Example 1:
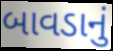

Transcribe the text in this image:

બાવડાનું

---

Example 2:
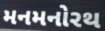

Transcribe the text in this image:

મનમનોરથ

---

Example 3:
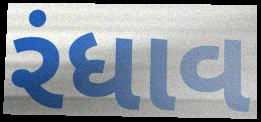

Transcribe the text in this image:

રંધાવ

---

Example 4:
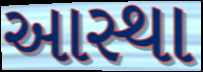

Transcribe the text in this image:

આસ્થા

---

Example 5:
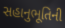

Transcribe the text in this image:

સહાનુભૂતિની